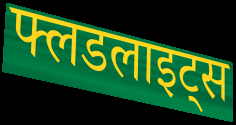
फ्लडलाइट्स